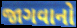
જાગવાનો